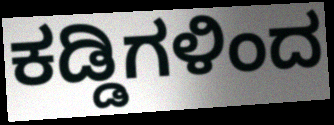
ಕಡ್ಡಿಗಳಿಂದ